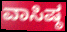
ವಾಸಿಷ್ಠ